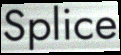
Splice